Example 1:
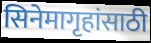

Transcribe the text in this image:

सिनेमागृहांसाठी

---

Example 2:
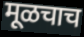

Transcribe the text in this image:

मूळचाच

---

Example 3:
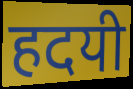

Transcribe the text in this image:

हदयी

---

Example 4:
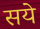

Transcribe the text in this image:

सये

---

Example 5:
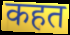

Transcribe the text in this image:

कहत